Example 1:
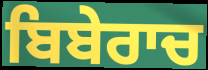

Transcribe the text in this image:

ਬਿਬੇਰਾਚ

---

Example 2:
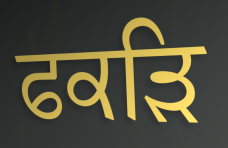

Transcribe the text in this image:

ਫਕੜਿ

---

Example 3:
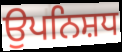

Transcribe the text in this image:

ਉਪਨਿਸ਼ਧ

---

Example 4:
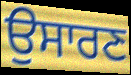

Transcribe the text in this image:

ਉਸਾਰਣ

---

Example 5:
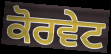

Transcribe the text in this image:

ਕੋਰਵੇਟ